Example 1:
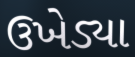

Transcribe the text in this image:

ઉખેડ્યા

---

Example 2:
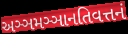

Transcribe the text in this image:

અઞ્ઞમઞ્ઞાનતિવત્તનં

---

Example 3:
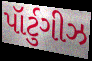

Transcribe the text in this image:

પૉર્ટુગીઝ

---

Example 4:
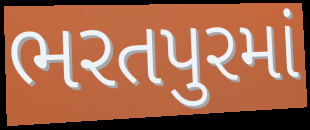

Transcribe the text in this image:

ભરતપુરમાં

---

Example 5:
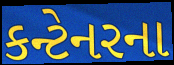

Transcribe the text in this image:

કન્ટેનરના